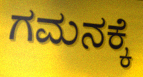
ಗಮನಕ್ಕೆ